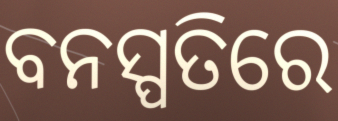
ବନସ୍ପତିରେ